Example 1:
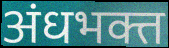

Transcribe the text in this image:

अंधभक्त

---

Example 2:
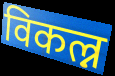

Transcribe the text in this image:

विकल्न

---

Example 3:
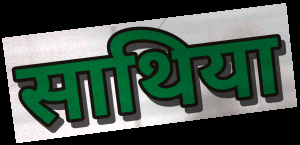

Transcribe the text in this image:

साथिया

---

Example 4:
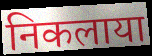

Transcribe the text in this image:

निकलाया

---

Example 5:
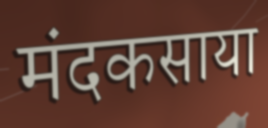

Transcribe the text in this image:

मंदकसाया